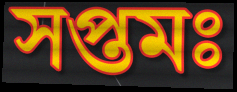
সপ্তমঃ